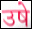
उषे